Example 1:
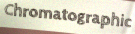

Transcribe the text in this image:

Chromatographic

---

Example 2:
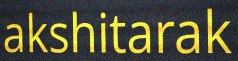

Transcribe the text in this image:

akshitarak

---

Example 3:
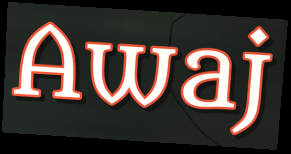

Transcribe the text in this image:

Awaj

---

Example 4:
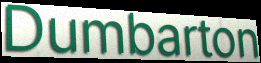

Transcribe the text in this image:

Dumbarton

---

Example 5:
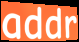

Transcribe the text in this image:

addr